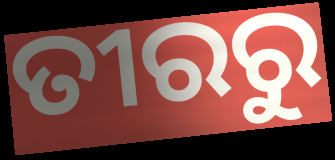
ତୀରରୁ